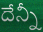
దేన్నీ